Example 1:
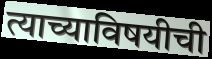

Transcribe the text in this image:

त्याच्याविषयीची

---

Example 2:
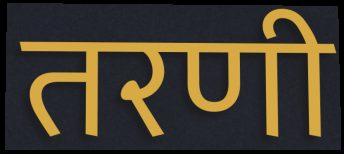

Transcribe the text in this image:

तरणी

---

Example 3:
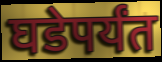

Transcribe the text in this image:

घडेपर्यंत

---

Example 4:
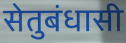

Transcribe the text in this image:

सेतुबंधासी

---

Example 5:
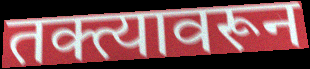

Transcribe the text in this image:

तक्त्यावरून